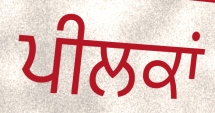
ਪੀਲਕਾਂ